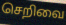
செறிவை